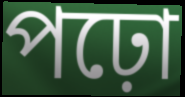
পঢ়ো